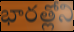
భారత్లోని